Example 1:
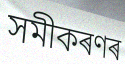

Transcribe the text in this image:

সমীকৰণৰ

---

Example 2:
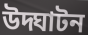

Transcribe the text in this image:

উদ্ঘাটন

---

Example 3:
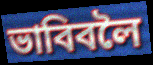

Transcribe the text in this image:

ভাবিবলৈ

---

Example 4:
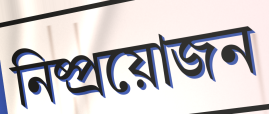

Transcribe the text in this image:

নিষ্প্ৰয়োজন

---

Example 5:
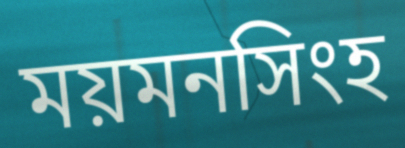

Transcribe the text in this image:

ময়মনসিংহ